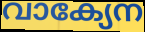
വാക്യേന